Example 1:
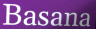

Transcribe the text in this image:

Basana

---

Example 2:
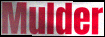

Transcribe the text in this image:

Mulder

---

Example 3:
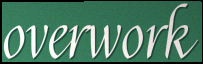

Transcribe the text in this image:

overwork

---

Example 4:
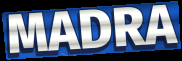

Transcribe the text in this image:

MADRA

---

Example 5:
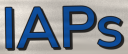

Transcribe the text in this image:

IAPs